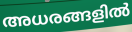
അധരങ്ങളിൽ